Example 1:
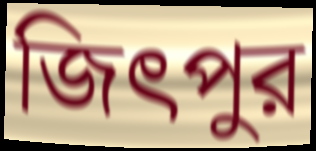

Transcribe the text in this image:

জিৎপুর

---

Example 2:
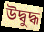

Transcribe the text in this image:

উদ্বুদ্ধ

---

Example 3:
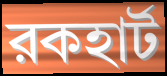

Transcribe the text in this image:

রকহার্ট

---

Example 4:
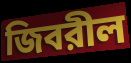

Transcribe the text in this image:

জিবরীল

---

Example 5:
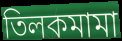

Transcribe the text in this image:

তিলকমামা